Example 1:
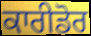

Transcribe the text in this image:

ਕਾਰੀਡੋਰ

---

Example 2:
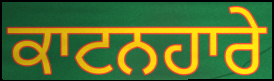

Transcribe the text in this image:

ਕਾਟਨਹਾਰੇ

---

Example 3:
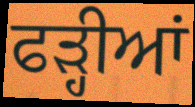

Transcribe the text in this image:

ਫੜ੍ਹੀਆਂ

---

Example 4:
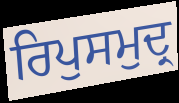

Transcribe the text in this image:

ਰਿਪੁਸਮੁਦ੍ਰ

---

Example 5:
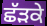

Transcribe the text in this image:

ਛੱੜਕੇ